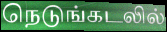
நெடுங்கடலில்